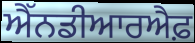
ਐੱਨਡੀਆਰਐਫ਼